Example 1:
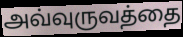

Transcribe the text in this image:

அவ்வுருவத்தை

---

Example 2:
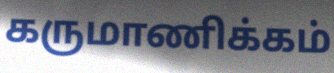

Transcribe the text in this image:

கருமாணிக்கம்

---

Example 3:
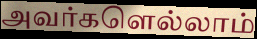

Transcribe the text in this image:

அவர்களெல்லாம்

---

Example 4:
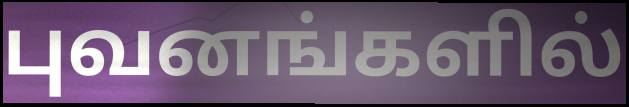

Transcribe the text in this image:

புவனங்களில்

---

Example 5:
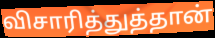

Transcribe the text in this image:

விசாரித்துத்தான்